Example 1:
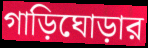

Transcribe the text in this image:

গাড়িঘোড়ার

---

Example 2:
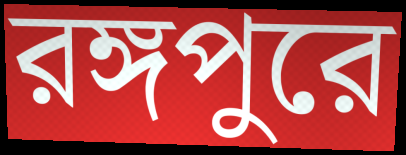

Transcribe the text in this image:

রঙ্গপুরে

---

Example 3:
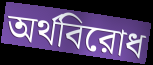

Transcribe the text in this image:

অর্থবিরোধ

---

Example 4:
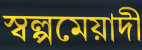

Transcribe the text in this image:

স্বল্পমেয়াদী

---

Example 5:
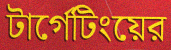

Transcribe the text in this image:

টার্গেটিংয়ের